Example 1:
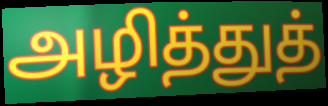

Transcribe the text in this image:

அழித்துத்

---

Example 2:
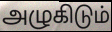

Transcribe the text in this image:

அழுகிடும்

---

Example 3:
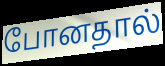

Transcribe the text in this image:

போனதால்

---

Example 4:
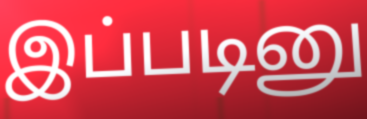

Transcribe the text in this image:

இப்படினு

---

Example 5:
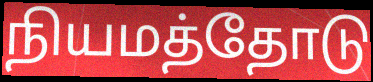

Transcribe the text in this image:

நியமத்தோடு